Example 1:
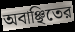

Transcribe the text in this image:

অবাঞ্ছিতের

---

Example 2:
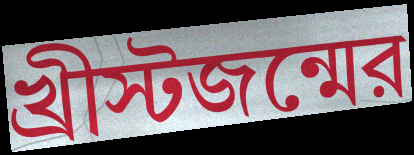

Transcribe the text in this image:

খ্রীস্টজন্মের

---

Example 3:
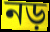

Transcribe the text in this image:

নড়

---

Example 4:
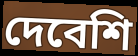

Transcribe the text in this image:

দেবেশি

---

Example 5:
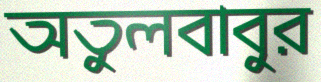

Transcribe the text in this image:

অতুলবাবুর